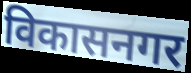
विकासनगर